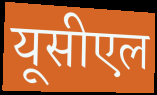
यूसीएल